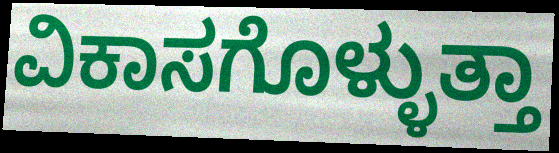
ವಿಕಾಸಗೊಳ್ಳುತ್ತಾ